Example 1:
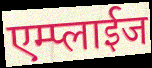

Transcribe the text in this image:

एम्प्लाईज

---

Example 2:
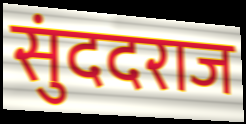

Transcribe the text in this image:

सुंददराज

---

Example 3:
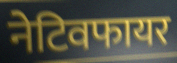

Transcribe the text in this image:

नेटिवफायर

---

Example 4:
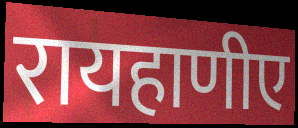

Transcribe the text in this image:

रायहाणीए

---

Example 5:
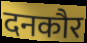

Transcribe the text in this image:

दनकौर